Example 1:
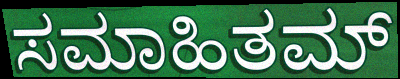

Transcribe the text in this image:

ಸಮಾಹಿತಮ್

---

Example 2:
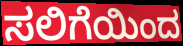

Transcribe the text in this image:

ಸಲಿಗೆಯಿಂದ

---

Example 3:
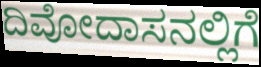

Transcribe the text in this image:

ದಿವೋದಾಸನಲ್ಲಿಗೆ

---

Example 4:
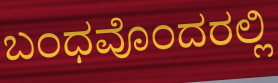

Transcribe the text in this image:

ಬಂಧವೊಂದರಲ್ಲಿ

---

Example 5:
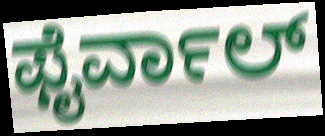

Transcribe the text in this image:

ಫೈರ್ವಾಲ್